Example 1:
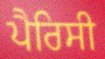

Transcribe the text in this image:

ਪੈਰਿਸੀ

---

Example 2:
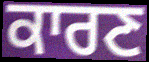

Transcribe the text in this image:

ਕਾਰਣ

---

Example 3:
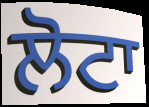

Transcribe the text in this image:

ਲੋਟਾ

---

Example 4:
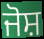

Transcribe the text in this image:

ਜੋਸ਼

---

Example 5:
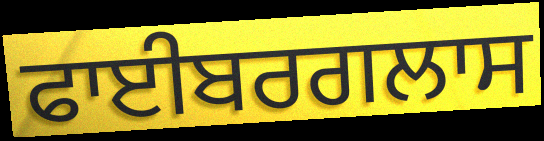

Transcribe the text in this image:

ਫਾਈਬਰਗਲਾਸ